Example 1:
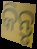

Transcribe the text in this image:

କିନ୍ତୃ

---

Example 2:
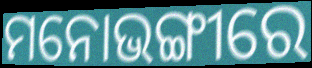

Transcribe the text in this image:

ମନୋଭଙ୍ଗୀରେ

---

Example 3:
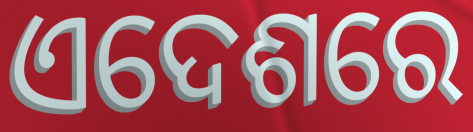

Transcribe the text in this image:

ଏଦେଶରେ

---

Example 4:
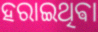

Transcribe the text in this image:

ହରାଇଥିଵା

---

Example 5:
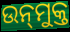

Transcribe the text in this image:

ଉନ୍‍ମୁକ୍ତ